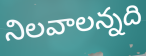
నిలవాలన్నది